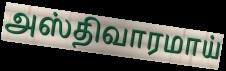
அஸ்திவாரமாய்